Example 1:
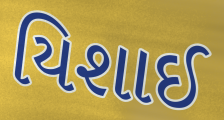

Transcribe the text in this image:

યિશાઈ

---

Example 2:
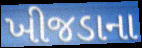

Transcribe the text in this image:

ખીજડાના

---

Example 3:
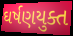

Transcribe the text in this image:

ઘર્ષણયુક્ત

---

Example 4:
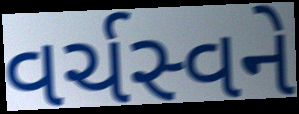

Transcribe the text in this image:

વર્ચસ્વને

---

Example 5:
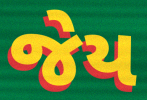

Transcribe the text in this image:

જેય